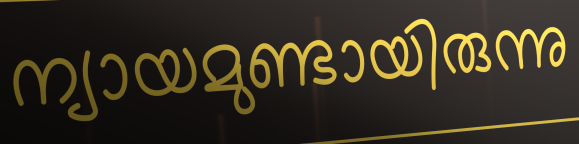
ന്യായമുണ്ടായിരുന്നു